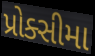
પ્રોક્સીમા